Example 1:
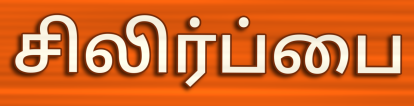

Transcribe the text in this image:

சிலிர்ப்பை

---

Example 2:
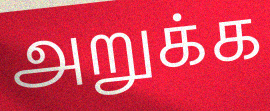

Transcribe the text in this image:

அறுக்க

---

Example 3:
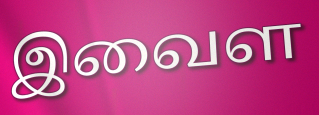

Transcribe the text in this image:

இவைள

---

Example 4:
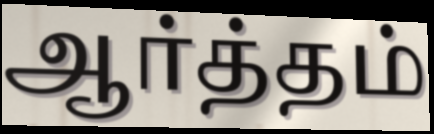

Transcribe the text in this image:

ஆர்த்தம்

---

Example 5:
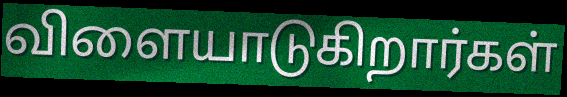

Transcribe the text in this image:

விளையாடுகிறார்கள்